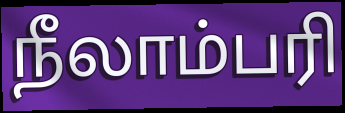
நீலாம்பரி